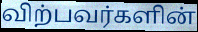
விற்பவர்களின்